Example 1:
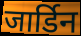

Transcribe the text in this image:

जार्डिन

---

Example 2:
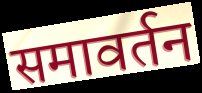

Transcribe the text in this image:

समावर्तन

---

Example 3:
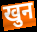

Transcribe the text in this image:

खुन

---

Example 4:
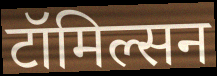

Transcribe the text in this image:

टॉमिल्सन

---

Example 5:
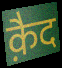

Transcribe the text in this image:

क़ैद